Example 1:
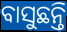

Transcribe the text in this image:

ବାସୁଛନ୍ତି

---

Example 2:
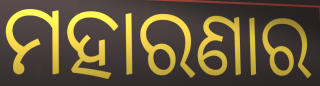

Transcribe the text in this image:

ମହାରଣାର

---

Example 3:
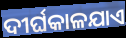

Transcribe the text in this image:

ଦୀର୍ଘକାଳଯାଏ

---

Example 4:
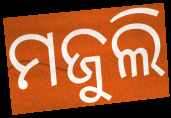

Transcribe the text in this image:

ମଜୁଲି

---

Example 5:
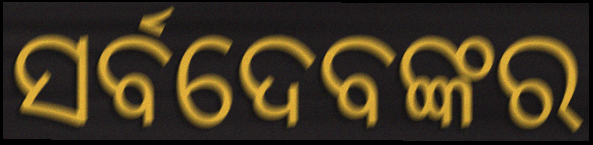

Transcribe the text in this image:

ସର୍ବଦେବଙ୍କର